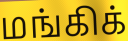
மங்கிக்